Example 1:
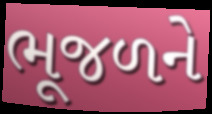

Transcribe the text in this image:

ભૂજળને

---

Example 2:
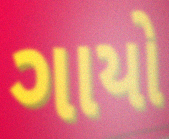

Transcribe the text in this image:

ગાયો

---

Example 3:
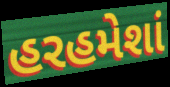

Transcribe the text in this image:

હરહમેશાં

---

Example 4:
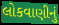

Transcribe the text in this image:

લોકવાણીનું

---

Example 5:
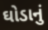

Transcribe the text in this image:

ઘોડાનું